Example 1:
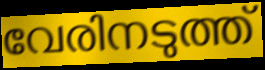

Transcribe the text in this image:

വേരിനടുത്ത്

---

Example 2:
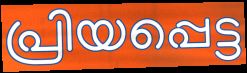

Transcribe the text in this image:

പ്രിയപ്പെട്ട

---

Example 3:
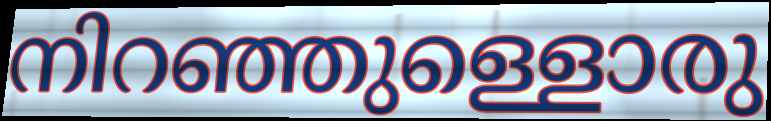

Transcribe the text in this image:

നിറഞ്ഞുള്ളൊരു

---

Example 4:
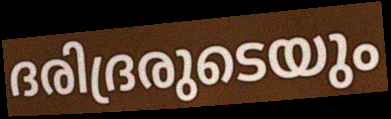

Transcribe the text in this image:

ദരിദ്രരുടെയും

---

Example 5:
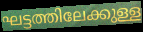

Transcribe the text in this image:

ഘട്ടത്തിലേക്കുള്ള